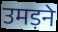
उमड़ने